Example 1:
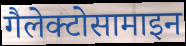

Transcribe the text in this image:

गैलेक्टोसामाइन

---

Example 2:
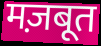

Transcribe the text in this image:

मज़बूत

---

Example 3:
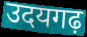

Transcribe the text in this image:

उदयगढ़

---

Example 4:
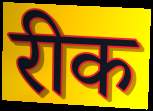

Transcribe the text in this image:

रीक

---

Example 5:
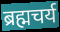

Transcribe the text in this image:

ब्रह्मचर्य